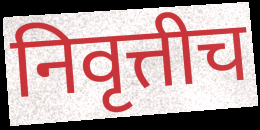
निवृत्तीच